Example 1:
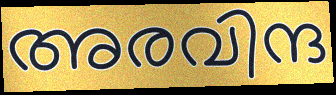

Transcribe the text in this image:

അരവിന്ദ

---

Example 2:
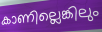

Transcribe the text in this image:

കാണില്ലെങ്കിലും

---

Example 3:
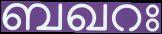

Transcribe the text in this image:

ബഖറഃ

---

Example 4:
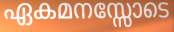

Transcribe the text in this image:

ഏകമനസ്സോടെ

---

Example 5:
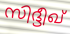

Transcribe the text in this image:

സിദ്ദീഖ്